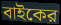
বাইকের